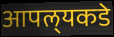
आपल्यकडे